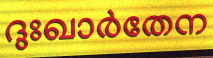
ദുഃഖാർതേന